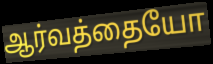
ஆர்வத்தையோ